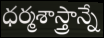
ధర్మశాస్త్రాన్నే